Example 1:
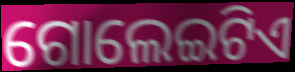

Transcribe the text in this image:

ଗୋଲେଇଟିଏ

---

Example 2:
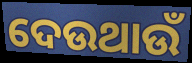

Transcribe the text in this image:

ଦେଉଥାଉଁ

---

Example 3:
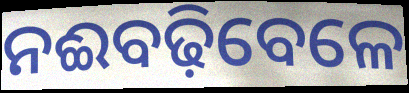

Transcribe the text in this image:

ନଈବଢ଼ିବେଳେ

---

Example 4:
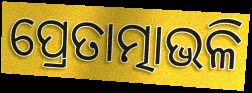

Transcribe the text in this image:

ପ୍ରେତାତ୍ମାଭଳି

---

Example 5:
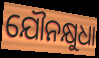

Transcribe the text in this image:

ଯୌନକ୍ଷୁଧା